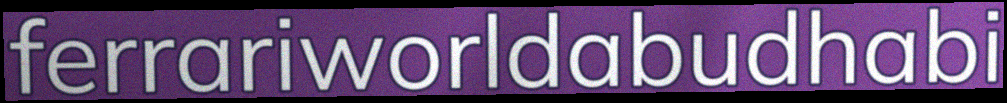
ferrariworldabudhabi